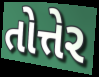
તોત્તેર